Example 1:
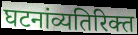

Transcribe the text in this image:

घटनांव्यतिरिक्त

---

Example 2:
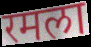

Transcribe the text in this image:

रमला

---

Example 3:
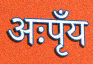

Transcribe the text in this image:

अःपृँय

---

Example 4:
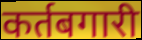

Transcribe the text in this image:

कर्तबगारी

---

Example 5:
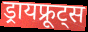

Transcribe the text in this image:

ड्रायफ्रूट्स